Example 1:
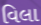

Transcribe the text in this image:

વિલા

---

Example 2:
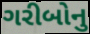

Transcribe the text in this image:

ગરીબોનુ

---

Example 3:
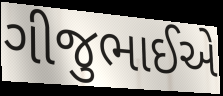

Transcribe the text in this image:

ગીજુભાઈએ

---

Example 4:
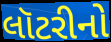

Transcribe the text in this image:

લૉટરીનો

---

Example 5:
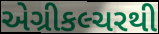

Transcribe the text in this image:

એગ્રીકલ્ચરથી